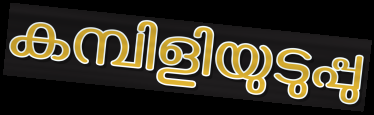
കമ്പിളിയുടുപ്പു